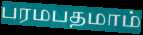
பரமபதமாம்